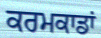
ਕਰਮਕਾਡਾਂ